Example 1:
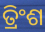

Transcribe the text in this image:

ତ୍ରିଂଶ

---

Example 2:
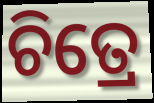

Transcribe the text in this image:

ଚିତ୍ରେ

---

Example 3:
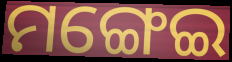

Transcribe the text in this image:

ମଙ୍ଗେଇ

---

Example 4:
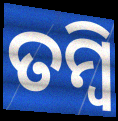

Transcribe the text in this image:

ତମ୍ବି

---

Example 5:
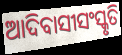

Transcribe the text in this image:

ଆଦିବାସୀସଂସ୍କୃତି